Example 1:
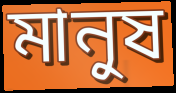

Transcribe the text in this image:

মানুষ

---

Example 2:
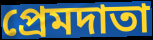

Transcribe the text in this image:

প্রেমদাতা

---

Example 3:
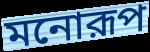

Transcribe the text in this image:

মনোরূপ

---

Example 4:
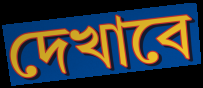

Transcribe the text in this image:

দেখাবে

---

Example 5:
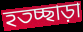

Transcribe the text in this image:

হতচ্ছাড়া